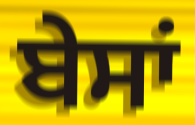
ਬੇਸਾਂ